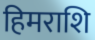
हिमराशि